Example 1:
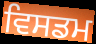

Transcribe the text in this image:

ਵਿਸਡਮ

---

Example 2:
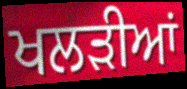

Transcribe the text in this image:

ਖਲੜੀਆਂ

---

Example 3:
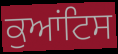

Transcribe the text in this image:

ਕੁਆਂਟਿਸ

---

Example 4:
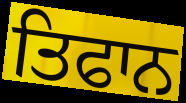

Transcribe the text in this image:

ਤਿਫਾਨ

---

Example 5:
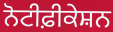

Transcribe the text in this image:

ਨੋਟੀਫ਼ੀਕੇਸ਼ਨ